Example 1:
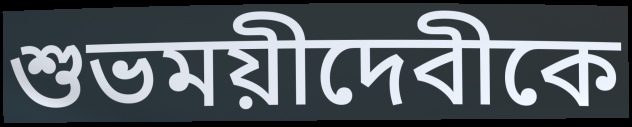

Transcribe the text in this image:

শুভময়ীদেবীকে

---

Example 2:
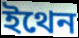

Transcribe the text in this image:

ইথেন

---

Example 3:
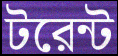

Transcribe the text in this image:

টরেন্ট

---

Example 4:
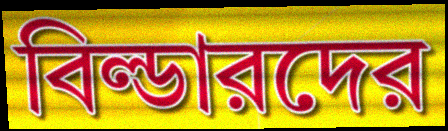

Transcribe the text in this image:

বিল্ডারদের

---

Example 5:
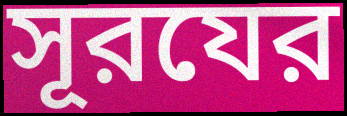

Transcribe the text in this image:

সূরযের